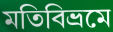
মতিবিভ্রমে